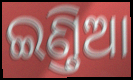
ଇଣ୍ତିଆ